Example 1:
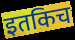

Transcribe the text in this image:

इतकिच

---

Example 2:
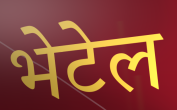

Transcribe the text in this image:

भेटेल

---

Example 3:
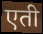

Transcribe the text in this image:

एती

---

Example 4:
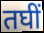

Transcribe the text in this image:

तघीं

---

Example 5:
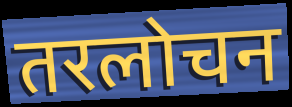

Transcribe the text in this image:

तरलोचन